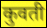
कुवती